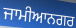
ਜਾਮੀਆਨਗਰ